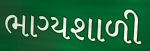
ભાગ્યશાળી